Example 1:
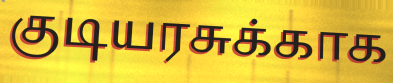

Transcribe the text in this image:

குடியரசுக்காக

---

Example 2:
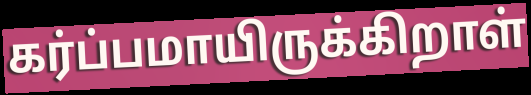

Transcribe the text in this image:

கர்ப்பமாயிருக்கிறாள்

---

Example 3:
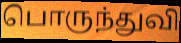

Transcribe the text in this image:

பொருந்துவி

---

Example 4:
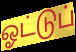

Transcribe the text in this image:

ஓட்டுப்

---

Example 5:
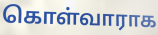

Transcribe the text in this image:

கொள்வாராக